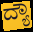
ದ್ಯೌ